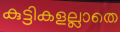
കുട്ടികളല്ലാതെ